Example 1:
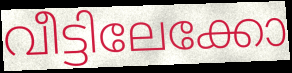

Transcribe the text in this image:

വീട്ടിലേക്കോ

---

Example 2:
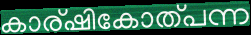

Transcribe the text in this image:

കാര്ഷികോത്പന്ന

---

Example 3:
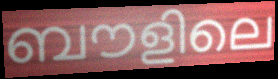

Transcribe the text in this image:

ബൗളിലെ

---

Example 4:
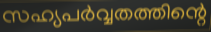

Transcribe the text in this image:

സഹ്യപർവ്വതത്തിന്റെ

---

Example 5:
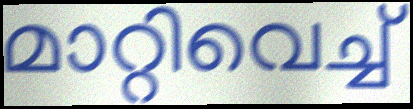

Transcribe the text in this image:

മാറ്റിവെച്ച്